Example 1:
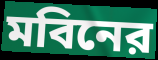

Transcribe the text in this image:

মবিনের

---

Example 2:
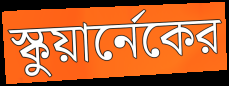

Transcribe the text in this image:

স্কুয়ার্নেকের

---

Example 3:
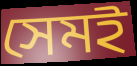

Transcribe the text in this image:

সেমই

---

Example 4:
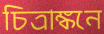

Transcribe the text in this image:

চিত্রাঙ্কনে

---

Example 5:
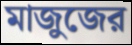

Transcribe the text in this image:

মাজুজের